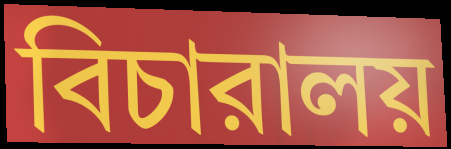
বিচারালয়